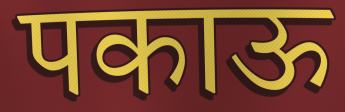
पकाऊ